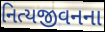
નિત્યજીવનના